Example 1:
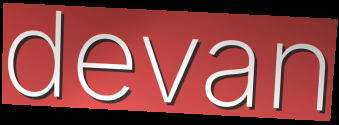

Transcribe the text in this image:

devan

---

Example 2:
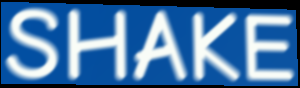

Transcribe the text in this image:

SHAKE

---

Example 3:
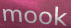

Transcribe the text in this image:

mook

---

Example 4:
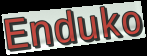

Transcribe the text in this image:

Enduko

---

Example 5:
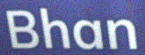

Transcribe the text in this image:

Bhan